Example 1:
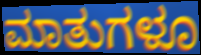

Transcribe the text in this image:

ಮಾತುಗಳೂ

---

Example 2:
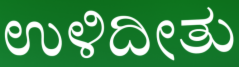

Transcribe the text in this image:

ಉಳಿದೀತು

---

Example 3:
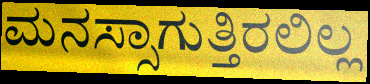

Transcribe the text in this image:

ಮನಸ್ಸಾಗುತ್ತಿರಲಿಲ್ಲ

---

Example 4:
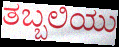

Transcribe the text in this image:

ತಬ್ಬಲಿಯು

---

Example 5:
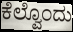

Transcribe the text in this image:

ಕೆಲ್ವೊಂದು